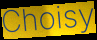
Choisy